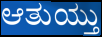
ಆತುಯ್ತು